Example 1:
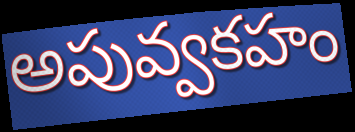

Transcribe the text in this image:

అపువ్వకహం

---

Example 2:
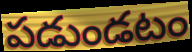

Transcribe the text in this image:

పడుండటం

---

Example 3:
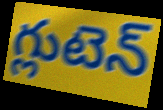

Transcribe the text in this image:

గ్లుటెన్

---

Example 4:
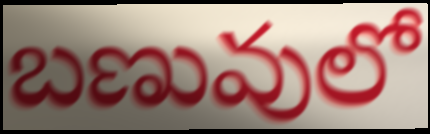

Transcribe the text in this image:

బణువులో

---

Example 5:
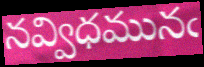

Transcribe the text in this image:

నవ్విధమునఁ